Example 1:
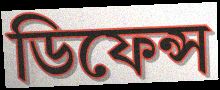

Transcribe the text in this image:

ডিফেন্স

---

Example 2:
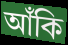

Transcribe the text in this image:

আঁকি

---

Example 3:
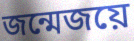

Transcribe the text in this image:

জন্মেজয়ে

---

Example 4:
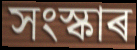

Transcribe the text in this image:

সংস্কাৰ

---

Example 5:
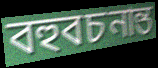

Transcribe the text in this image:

বহুবচনান্ত